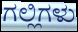
ಗಲ್ಲಿಗಳು